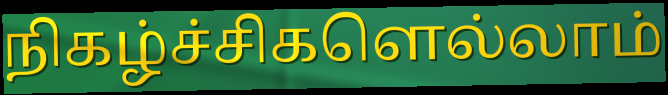
நிகழ்ச்சிகளெல்லாம்